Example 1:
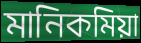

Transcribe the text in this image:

মানিকমিয়া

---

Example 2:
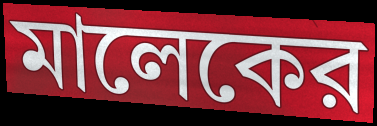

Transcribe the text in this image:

মালেকের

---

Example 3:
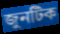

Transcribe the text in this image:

জুনটিক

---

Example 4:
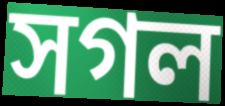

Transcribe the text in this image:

সগল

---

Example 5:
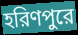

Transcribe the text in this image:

হরিণপুরে